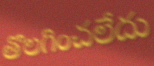
తొలగించలేదు